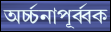
অর্চ্চনাপূর্ব্বক